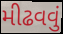
મીઢવવું